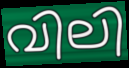
വിലി